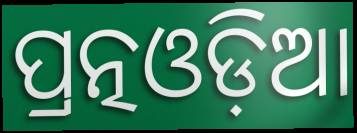
ପ୍ରତ୍ନଓଡ଼ିଆ